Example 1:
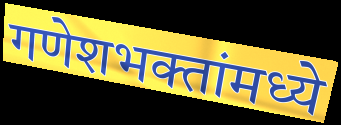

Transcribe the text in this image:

गणेशभक्तांमध्ये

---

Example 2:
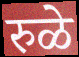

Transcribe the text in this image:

रुळे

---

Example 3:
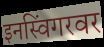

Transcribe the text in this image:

इनस्विंगरवर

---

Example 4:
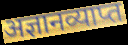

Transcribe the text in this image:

अज्ञानव्याप्त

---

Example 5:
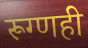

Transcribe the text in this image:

रूग्णही